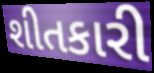
શીતકારી